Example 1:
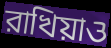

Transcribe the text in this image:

রাখিয়াও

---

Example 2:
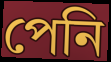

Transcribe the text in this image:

পেনি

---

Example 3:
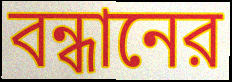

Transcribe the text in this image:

বন্ধানের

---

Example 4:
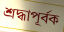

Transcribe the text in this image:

শ্রদ্ধাপূর্বক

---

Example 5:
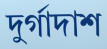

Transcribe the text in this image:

দুর্গাদাশ